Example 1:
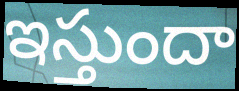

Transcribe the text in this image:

ఇస్తుందా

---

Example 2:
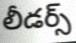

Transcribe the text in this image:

లీడర్స్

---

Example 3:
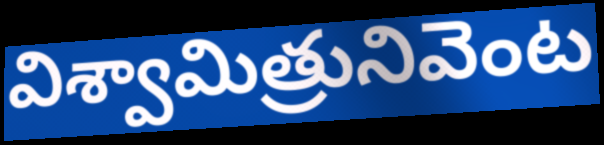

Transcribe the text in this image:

విశ్వామిత్రునివెంట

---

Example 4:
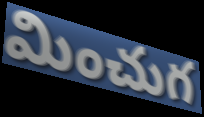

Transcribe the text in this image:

మించుగ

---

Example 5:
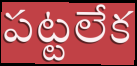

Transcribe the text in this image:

పట్టలేక